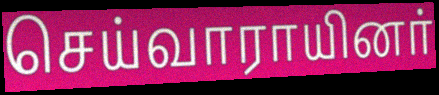
செய்வாராயினர்